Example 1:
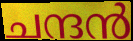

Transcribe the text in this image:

ചന്ദൻ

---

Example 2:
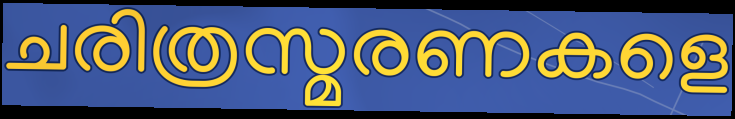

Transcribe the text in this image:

ചരിത്രസ്മരണകളെ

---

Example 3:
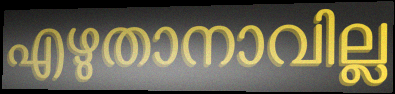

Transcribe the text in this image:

എഴുതാനാവില്ല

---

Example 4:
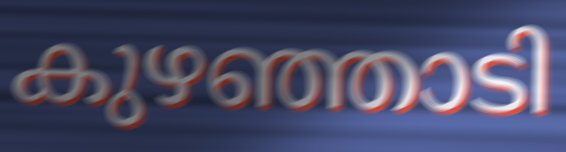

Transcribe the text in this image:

കുഴഞ്ഞാടി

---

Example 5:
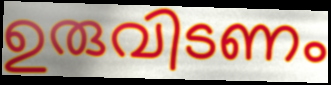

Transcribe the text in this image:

ഉരുവിടണം